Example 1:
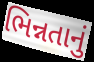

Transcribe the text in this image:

ભિન્નતાનું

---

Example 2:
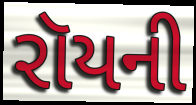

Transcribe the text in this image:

રૉયની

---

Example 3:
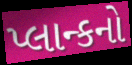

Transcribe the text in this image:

પ્લાન્કનો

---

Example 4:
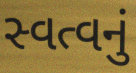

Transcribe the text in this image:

સ્વત્વનું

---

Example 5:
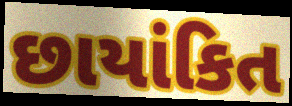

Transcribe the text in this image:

છાયાંકિત